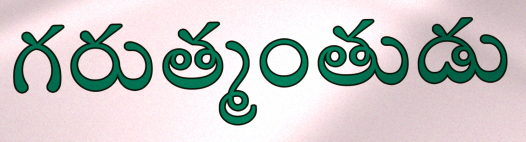
గరుత్మంతుడు